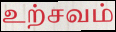
உற்சவம்